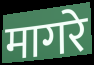
मागरे